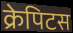
क्रेपिटस